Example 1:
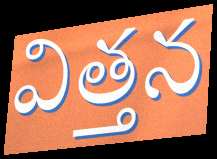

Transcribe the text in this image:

విత్తన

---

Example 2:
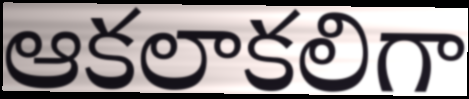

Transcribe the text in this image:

ఆకలాకలిగా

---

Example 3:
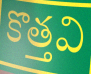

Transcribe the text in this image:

కొత్తవి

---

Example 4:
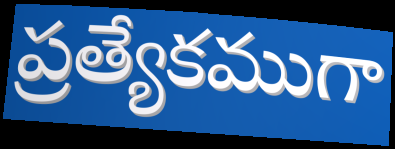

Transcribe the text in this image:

ప్రత్యేకముగా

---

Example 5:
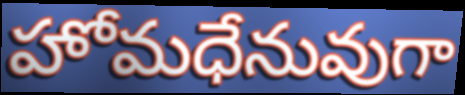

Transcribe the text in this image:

హోమధేనువుగా